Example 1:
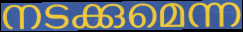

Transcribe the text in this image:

നടക്കുമെന്ന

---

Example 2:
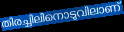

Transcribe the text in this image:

തിരച്ചിലിനൊടുവിലാണ്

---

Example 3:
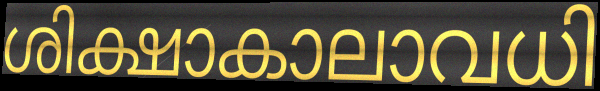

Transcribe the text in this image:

ശിക്ഷാകാലാവധി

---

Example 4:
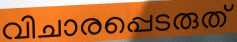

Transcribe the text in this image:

വിചാരപ്പെടരുത്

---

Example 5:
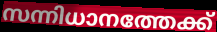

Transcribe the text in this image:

സന്നിധാനത്തേക്ക്